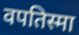
वपतिस्मा